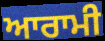
ਆਰਾਮੀ